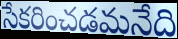
సేకరించడమనేది